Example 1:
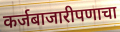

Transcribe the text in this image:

कर्जबाजारीपणाचा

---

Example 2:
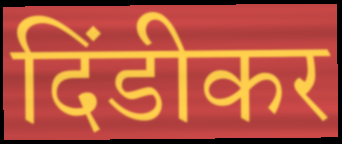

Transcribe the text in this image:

दिंडीकर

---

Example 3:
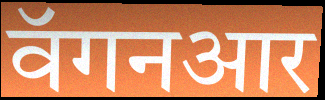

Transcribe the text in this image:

वॅगनआर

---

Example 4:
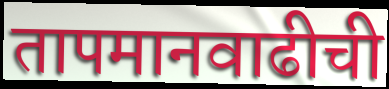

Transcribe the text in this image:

तापमानवाढीची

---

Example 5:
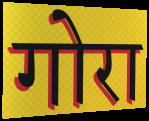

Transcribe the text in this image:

गोरा